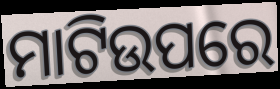
ମାଟିଉପରେ